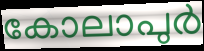
കോലാപുർ